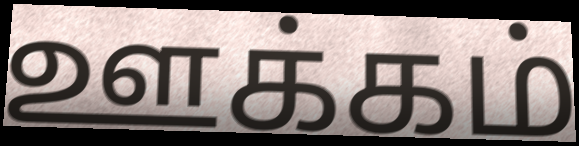
ஊக்கம்